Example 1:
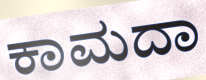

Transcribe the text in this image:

ಕಾಮದಾ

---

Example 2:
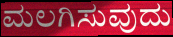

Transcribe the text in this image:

ಮಲಗಿಸುವುದು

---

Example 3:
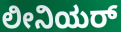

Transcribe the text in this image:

ಲೀನಿಯರ್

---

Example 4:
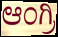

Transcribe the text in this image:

ಆಂಗ್ರಿ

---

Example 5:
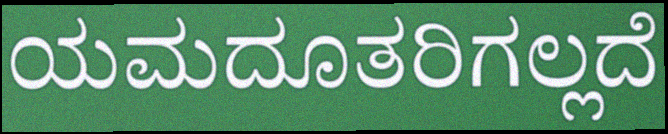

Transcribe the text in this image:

ಯಮದೂತರಿಗಲ್ಲದೆ